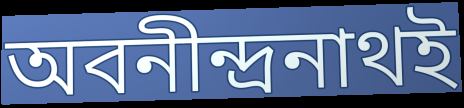
অবনীন্দ্রনাথই